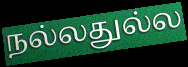
நல்லதுல்ல